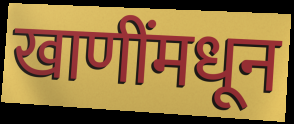
खाणींमधून